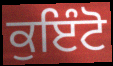
ਕੁਇੰਟੋ